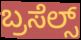
ಬ್ರಸೆಲ್ಸ್